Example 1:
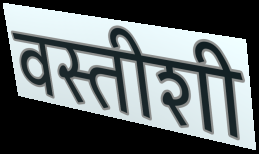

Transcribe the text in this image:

वस्‍तीशी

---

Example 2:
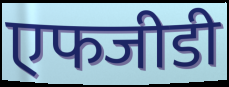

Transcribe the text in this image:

एफजीडी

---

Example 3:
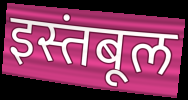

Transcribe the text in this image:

इस्तंबूल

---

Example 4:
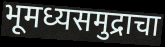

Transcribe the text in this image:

भूमध्यसमुद्राचा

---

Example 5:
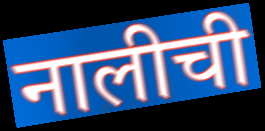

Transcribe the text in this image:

नालीची